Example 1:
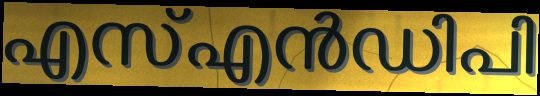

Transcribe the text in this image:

എസ്എൻഡിപി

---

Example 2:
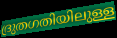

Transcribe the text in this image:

ദ്രുതഗതിയിലുള്ള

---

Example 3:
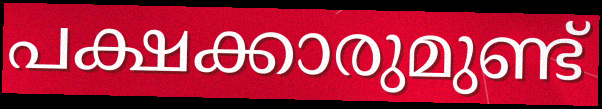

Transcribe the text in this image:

പക്ഷക്കാരുമുണ്ട്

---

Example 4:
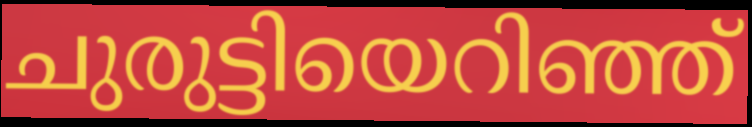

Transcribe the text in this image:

ചുരുട്ടിയെറിഞ്ഞ്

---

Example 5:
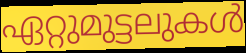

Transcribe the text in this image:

ഏറ്റുമുട്ടലുകൾ